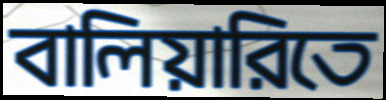
বালিয়ারিতে